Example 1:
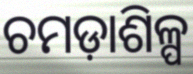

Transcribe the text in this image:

ଚମଡ଼ାଶିଳ୍ପ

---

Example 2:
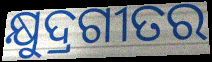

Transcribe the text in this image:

କ୍ଷୁଦ୍ରଗୀତର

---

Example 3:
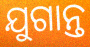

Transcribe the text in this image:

ଯୁଗାନ୍ତ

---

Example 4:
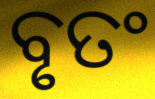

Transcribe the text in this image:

ବୃତଂ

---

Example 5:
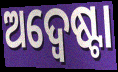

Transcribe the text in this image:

ଅଦ୍ୱେଷ୍ଟା